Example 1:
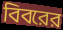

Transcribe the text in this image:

বিবরের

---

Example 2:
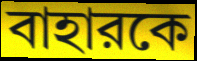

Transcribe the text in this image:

বাহারকে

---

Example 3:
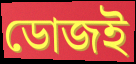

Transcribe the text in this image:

ডোজই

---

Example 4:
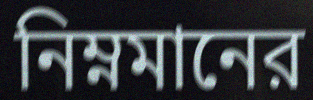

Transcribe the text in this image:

নিম্নমানের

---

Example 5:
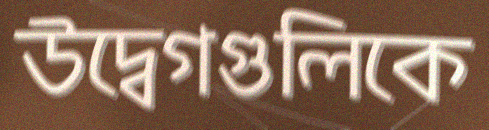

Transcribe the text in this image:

উদ্বেগগুলিকে